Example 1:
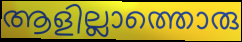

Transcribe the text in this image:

ആളില്ലാത്തൊരു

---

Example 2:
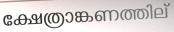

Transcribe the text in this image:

ക്ഷേത്രാങ്കണത്തില്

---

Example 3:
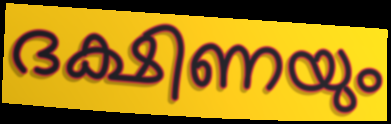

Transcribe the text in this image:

ദക്ഷിണയും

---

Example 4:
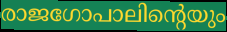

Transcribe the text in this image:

രാജഗോപാലിന്റെയും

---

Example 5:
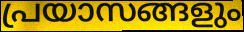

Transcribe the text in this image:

പ്രയാസങ്ങളും